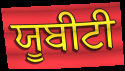
ਯੂਬੀਟੀ